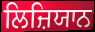
ਲਿਜ਼ਿਯਾਨ